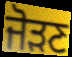
ਜੋੜਣ